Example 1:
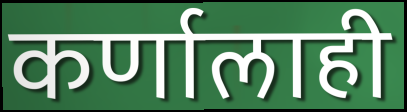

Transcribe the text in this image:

कर्णालाही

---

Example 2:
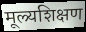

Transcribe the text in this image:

मूल्यशिक्षण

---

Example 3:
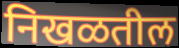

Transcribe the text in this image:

निखळतील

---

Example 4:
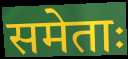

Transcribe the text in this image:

समेताः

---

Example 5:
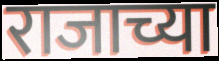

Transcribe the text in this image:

राजाच्या